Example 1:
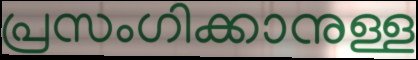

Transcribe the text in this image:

പ്രസംഗിക്കാനുള്ള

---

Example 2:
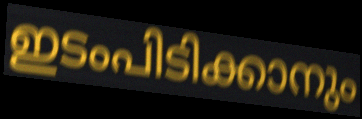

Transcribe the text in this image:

ഇടംപിടിക്കാനും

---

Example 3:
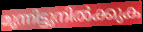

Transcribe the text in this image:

മുന്നിട്ടുനിൽക്കുക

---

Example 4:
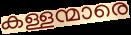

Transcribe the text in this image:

കള്ളന്മാരെ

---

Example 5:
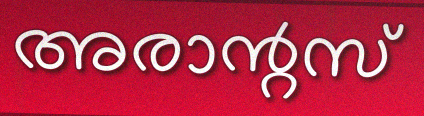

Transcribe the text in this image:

അരാന്റസ്